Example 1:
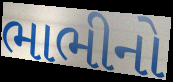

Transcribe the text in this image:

ભાભીનો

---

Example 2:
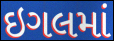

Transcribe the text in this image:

ઇગલમાં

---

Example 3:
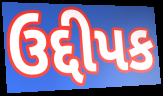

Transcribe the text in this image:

ઉદ્દીપક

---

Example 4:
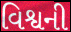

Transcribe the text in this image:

વિશ્વની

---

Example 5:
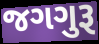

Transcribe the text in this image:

જગગુરૂ